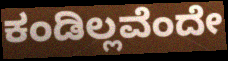
ಕಂಡಿಲ್ಲವೆಂದೇ